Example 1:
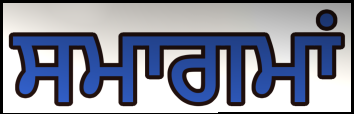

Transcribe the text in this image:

ਸਮਾਗਮਾਂ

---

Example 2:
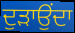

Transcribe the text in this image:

ਦੁੜਾਉਂਦਾ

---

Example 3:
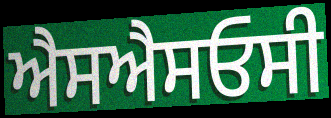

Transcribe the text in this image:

ਐਸਐਸਓਸੀ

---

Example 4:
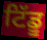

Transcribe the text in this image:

ਟਿੱਡੂ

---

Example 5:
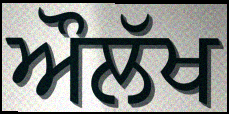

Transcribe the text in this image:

ਔਲੱਖ